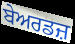
ਬੇਅਰਡਜ਼